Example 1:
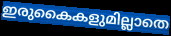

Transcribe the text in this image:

ഇരുകൈകളുമില്ലാതെ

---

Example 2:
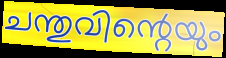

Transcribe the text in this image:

ചന്തുവിന്റെയും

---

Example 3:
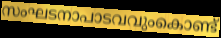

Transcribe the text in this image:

സംഘടനാപാടവവുംകൊണ്ട്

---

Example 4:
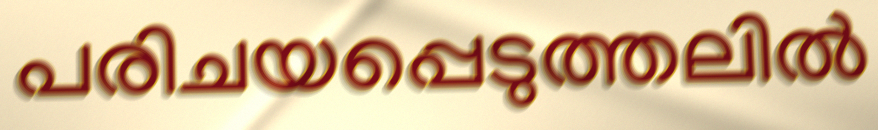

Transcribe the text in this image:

പരിചയപ്പെടുത്തലിൽ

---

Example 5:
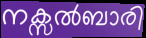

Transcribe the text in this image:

നക്സൽബാരി